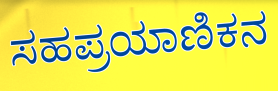
ಸಹಪ್ರಯಾಣಿಕನ